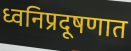
ध्वनिप्रदूषणात